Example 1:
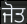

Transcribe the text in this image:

ਜੋਤ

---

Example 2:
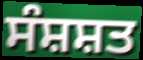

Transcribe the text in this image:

ਸੰਸ਼ਸ਼ਤ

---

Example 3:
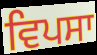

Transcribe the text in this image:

ਵਿਪਸਾ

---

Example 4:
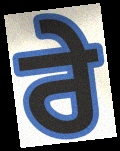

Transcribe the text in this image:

ਰੇ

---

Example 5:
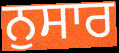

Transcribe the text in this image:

ਨੁਸਾਰ